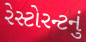
રેસ્ટોરન્ટનું